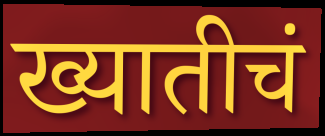
ख्यातीचं